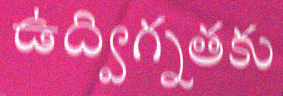
ఉద్విగ్నతకు